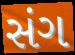
સંગ